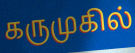
கருமுகில்